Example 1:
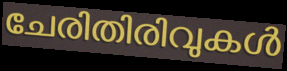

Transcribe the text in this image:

ചേരിതിരിവുകൾ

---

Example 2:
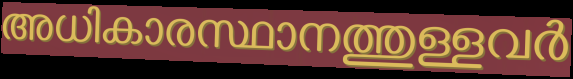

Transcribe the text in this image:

അധികാരസ്ഥാനത്തുള്ളവർ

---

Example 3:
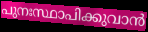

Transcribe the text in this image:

പുനഃസ്ഥാപിക്കുവാൻ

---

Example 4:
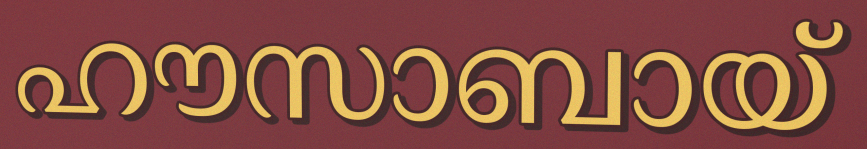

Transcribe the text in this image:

ഹൗസാബായ്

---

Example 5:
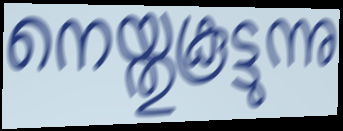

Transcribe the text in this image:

നെയ്തുകൂട്ടുന്നു